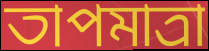
তাপমাত্রা